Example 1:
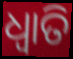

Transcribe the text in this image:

ଧ୍ବାତି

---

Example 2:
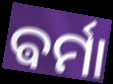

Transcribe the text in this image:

ଵର୍ମା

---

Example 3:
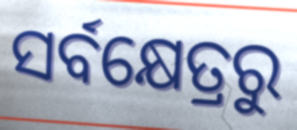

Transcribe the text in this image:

ସର୍ବକ୍ଷେତ୍ରରୁ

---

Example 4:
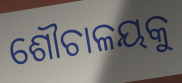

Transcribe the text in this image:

ଶୌଚାଳୟକୁ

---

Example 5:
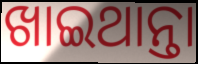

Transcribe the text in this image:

ଖାଇଥାନ୍ତା